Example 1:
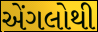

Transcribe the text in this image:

એંગલોથી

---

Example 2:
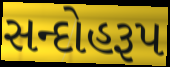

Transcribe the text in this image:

સન્દોહરૂપ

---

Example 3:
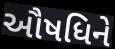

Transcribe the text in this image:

ઔષધિને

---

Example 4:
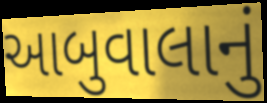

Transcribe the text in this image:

આબુવાલાનું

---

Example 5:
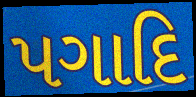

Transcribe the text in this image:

પગાદિ